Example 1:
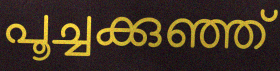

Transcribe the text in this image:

പൂച്ചക്കുഞ്ഞ്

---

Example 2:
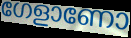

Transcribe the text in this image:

ഗേളാണോ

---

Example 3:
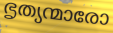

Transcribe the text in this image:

ഭൃത്യന്മാരോ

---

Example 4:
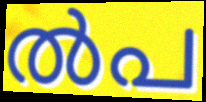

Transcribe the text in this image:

ൽപ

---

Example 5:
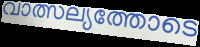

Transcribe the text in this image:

വാത്സല്യത്തോടെ